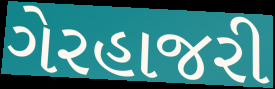
ગેરહાજરી